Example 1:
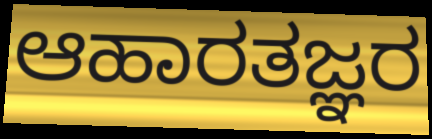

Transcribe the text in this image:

ಆಹಾರತಜ್ಞರ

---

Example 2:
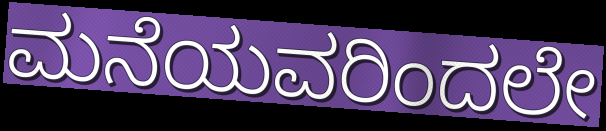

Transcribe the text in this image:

ಮನೆಯವರಿಂದಲೇ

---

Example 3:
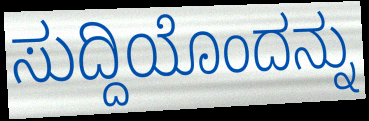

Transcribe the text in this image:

ಸುದ್ದಿಯೊಂದನ್ನು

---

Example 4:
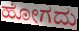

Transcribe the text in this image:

ಹೋಗದು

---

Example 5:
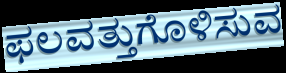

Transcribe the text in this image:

ಫಲವತ್ತುಗೊಳಿಸುವ